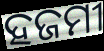
ହଜମୀ